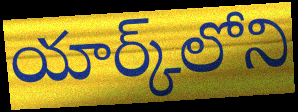
యార్క్‌లోని